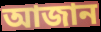
আজান